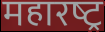
महारष्ट्र